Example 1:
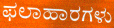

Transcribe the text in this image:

ಫಲಾಹಾರಗಳು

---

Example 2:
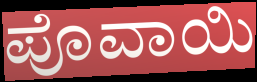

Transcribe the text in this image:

ಪೊವಾಯಿ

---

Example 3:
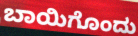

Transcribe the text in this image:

ಬಾಯಿಗೊಂದು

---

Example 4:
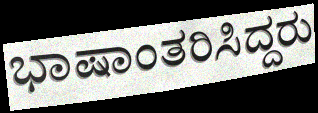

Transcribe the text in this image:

ಭಾಷಾಂತರಿಸಿದ್ದರು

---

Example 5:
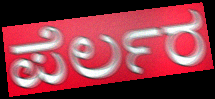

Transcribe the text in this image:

ಪೆರ್ಲರ